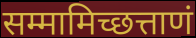
सम्मामिच्छत्ताणं